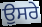
ਉਸਰੇ